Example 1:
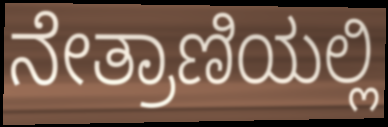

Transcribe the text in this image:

ನೇತ್ರಾಣಿಯಲ್ಲಿ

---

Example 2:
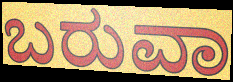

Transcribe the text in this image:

ಬರುವಾ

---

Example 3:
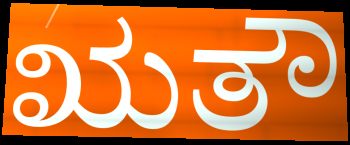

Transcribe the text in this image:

ಋತೌ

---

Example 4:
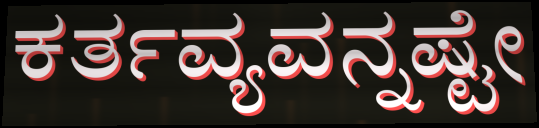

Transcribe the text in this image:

ಕರ್ತವ್ಯವನ್ನಷ್ಟೇ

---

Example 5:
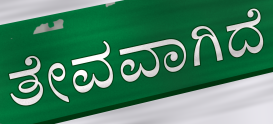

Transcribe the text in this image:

ತೇವವಾಗಿದೆ